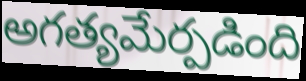
అగత్యమేర్పడింది